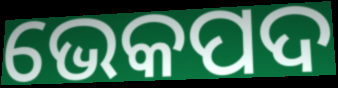
ଭେକପଦ